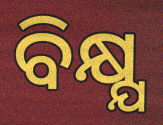
ବିକ୍ଷ୍ଯ